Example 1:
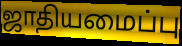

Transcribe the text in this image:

ஜாதியமைப்பு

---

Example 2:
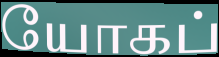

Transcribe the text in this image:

யோகப்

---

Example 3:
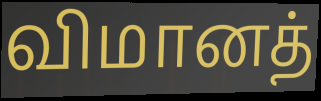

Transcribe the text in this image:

விமானத்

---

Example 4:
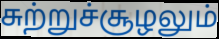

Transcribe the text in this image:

சுற்றுச்சூழலும்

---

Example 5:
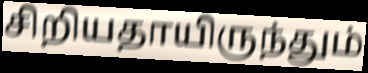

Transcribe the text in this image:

சிறியதாயிருந்தும்